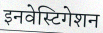
इनवेस्टिगेशन